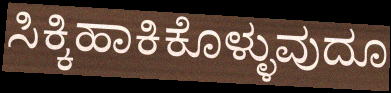
ಸಿಕ್ಕಿಹಾಕಿಕೊಳ್ಳುವುದೂ